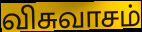
விசுவாசம்